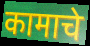
कामाचे